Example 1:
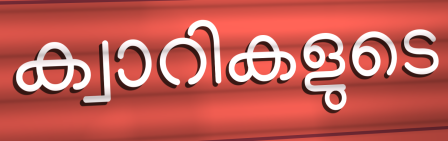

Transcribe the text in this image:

ക്വാറികളുടെ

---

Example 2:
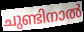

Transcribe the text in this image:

ചുണ്ടിനാൽ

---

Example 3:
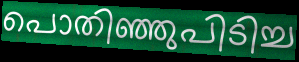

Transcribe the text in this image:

പൊതിഞ്ഞുപിടിച്ച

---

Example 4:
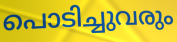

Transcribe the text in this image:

പൊടിച്ചുവരും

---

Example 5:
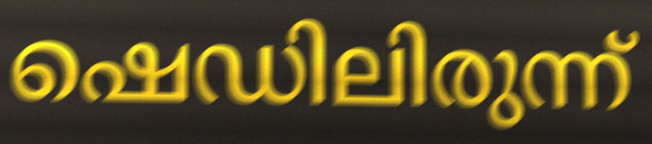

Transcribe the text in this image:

ഷെഡിലിരുന്ന്